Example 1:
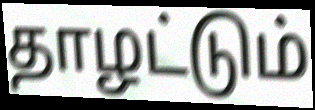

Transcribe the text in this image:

தாழட்டும்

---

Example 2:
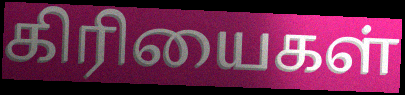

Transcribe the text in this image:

கிரியைகள்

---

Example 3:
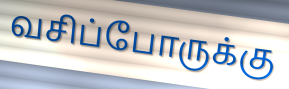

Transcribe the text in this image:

வசிப்போருக்கு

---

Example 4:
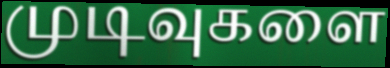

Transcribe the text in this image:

முடிவுகளை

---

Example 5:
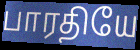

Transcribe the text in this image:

பாரதியே